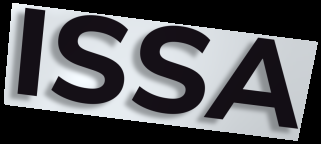
ISSA